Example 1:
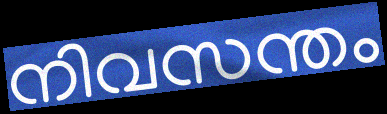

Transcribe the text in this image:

നിവസന്തം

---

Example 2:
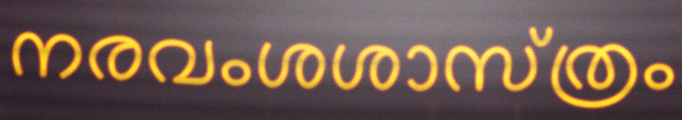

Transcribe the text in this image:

നരവംശശാസ്‌ത്രം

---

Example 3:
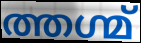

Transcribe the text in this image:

ത്തഗ്മ്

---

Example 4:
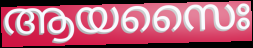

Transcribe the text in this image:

ആയസൈഃ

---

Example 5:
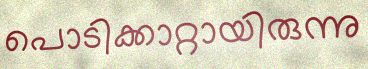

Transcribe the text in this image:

പൊടിക്കാറ്റായിരുന്നു